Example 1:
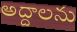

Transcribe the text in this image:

అద్దాలను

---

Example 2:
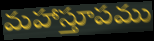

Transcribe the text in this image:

మహాస్తూపము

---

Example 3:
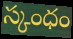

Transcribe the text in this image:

స్కంధం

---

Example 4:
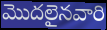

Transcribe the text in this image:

మొదలైనవారి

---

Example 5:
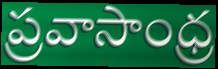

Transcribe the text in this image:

ప్రవాసాంధ్ర